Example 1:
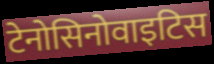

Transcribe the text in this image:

टेनोसिनोवाइटिस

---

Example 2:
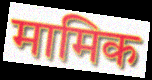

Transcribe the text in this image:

मामिक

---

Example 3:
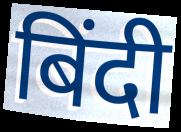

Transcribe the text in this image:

बिंदी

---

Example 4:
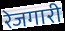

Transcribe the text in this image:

रेजगारी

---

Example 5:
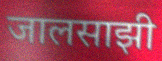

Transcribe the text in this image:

जालसाझी